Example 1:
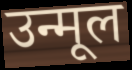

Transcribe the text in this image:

उन्मूल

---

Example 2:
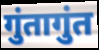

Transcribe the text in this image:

गुंतागुंत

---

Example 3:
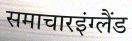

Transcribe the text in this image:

समाचारइंग्लैंड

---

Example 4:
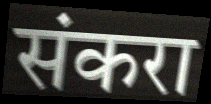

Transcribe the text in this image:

संकरा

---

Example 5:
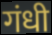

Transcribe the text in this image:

गंधी